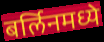
बर्लिनमध्ये